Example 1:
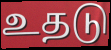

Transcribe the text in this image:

உதடு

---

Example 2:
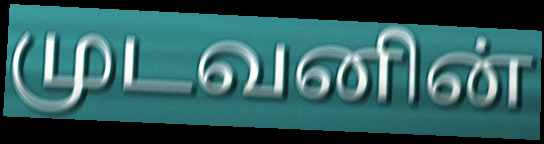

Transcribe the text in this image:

முடவனின்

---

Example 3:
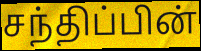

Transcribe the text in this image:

சந்திப்பின்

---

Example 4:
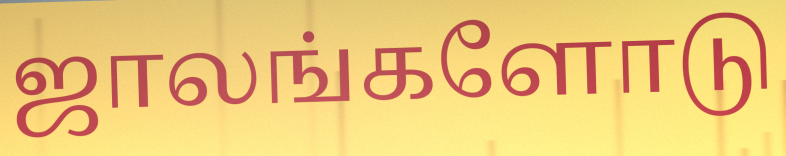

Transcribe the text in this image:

ஜாலங்களோடு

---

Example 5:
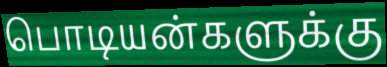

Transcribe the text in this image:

பொடியன்களுக்கு